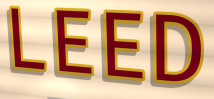
LEED